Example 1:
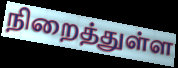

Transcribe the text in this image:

நிறைத்துள்ள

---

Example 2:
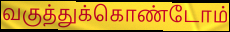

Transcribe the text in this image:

வகுத்துக்கொண்டோம்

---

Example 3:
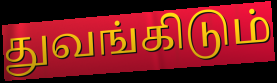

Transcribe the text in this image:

துவங்கிடும்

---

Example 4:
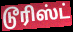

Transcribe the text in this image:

டூரிஸ்ட்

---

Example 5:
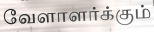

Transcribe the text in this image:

வேளாளர்க்கும்